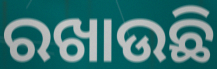
ରଖାଉଛି